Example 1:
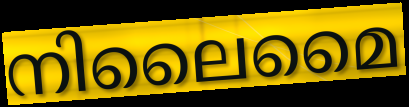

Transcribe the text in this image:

നിലൈമൈ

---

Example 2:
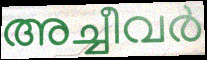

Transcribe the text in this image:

അച്ചീവർ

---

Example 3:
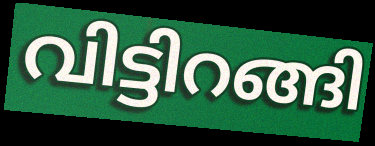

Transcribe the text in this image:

വിട്ടിറങ്ങി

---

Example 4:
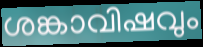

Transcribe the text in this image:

ശങ്കാവിഷവും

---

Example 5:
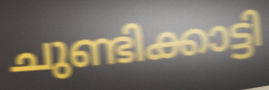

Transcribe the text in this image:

ചുണ്ടിക്കാട്ടി